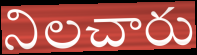
నిలచారు